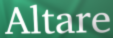
Altare